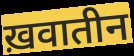
ख़वातीन